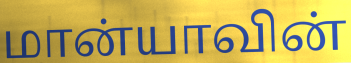
மான்யாவின்